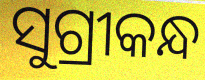
ସୁଗ୍ରୀକନ୍ଧ